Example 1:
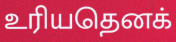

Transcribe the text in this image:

உரியதெனக்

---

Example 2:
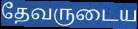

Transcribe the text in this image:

தேவருடைய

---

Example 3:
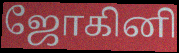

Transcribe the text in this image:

ஜோகினி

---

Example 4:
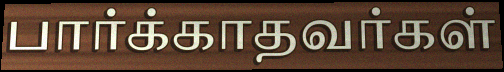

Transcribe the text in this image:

பார்க்காதவர்கள்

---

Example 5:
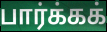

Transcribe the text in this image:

பார்க்கக்